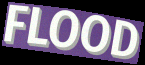
FLOOD